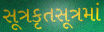
સૂત્રકૃતસૂત્રમાં